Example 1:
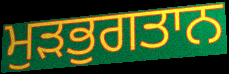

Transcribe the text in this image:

ਮੁੜਭੁਗਤਾਨ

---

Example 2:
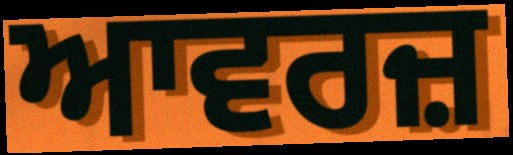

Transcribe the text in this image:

ਆਵਰਜ਼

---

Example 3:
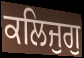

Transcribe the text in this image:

ਕਲਿਜੁਗੁ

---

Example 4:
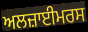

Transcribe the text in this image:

ਅਲਜ਼ਾਈਮਰਸ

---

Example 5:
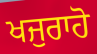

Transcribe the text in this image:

ਖਜੁਰਾਹੋ